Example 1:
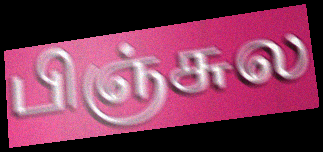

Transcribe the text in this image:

பிஞ்சுல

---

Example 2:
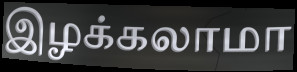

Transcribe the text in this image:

இழக்கலாமா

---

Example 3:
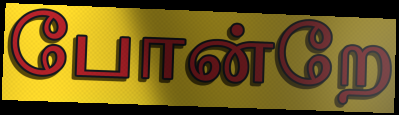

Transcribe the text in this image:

போன்றே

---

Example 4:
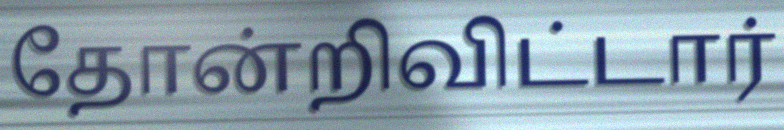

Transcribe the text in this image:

தோன்றிவிட்டார்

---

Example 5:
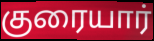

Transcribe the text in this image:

குரையார்